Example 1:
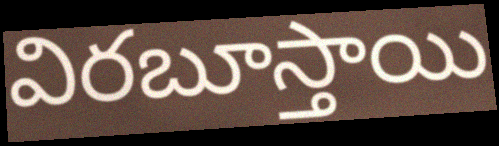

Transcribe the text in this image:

విరబూస్తాయి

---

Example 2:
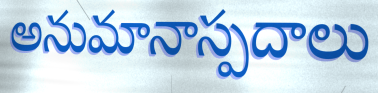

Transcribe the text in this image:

అనుమానాస్పదాలు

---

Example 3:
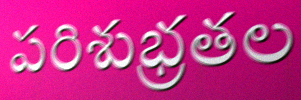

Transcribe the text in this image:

పరిశుభ్రతల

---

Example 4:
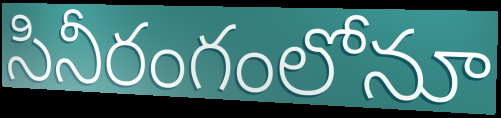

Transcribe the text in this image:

సినీరంగంలోనూ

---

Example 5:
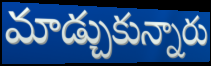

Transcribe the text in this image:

మాడ్చుకున్నారు